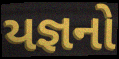
યજ્ઞનો